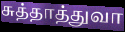
சுத்தாத்துவா